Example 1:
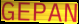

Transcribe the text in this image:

GEPAN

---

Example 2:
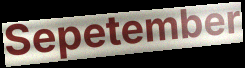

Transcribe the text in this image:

Sepetember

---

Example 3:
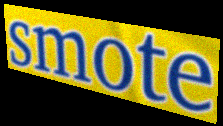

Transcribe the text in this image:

smote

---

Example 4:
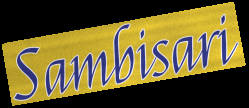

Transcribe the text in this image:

Sambisari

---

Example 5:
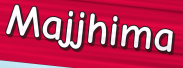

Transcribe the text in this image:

Majjhima